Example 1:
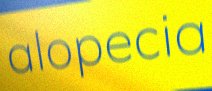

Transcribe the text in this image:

alopecia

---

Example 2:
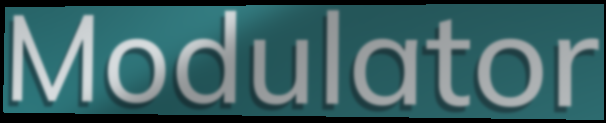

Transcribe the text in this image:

Modulator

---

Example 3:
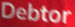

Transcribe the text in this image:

Debtor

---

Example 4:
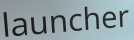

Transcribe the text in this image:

launcher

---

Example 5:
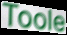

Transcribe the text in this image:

Toole